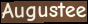
Augustee